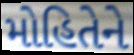
મોહિતેને